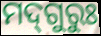
ମଦ୍‌ଗୁରୁଃ